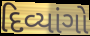
દિવ્યાંગો